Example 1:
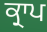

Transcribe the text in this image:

ਕ੍ਰਾਪ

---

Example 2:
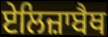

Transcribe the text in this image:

ਏਲਿਜ਼ਾਬੈਥ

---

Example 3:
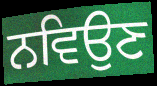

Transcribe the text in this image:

ਨਵਿਉਣ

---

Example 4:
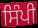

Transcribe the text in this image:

ਸਿੰਪੀ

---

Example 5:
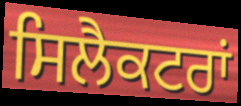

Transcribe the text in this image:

ਸਿਲੈਕਟਰਾਂ